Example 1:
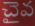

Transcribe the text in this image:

చైవ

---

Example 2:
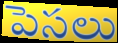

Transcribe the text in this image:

పెసలు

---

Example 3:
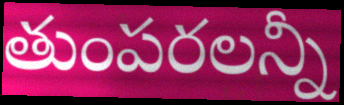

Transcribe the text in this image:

తుంపరలన్నీ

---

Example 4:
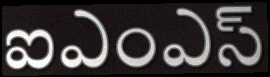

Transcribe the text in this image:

ఐఎంఎస్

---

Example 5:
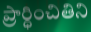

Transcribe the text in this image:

ప్రార్ధించితిని